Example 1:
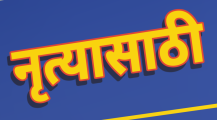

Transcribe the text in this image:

नृत्यासाठी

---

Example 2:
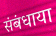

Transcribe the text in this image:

संबंधाया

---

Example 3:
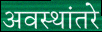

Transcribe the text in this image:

अवस्थांतरे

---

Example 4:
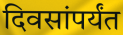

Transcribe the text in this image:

दिवसांपर्यंत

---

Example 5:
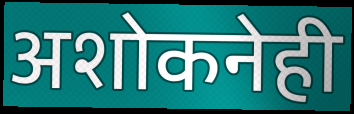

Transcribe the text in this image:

अशोकनेही